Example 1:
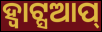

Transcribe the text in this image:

ହ୍ବାଟ୍ସଆପ୍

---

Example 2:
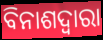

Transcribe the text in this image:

ବିନାଶଦ୍ଵାରା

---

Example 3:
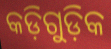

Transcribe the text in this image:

କଡ଼ିଗୁଡ଼ିକ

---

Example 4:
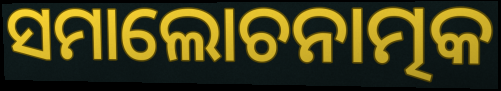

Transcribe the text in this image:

ସମାଲୋଚନାତ୍ମକ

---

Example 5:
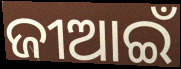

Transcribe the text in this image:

ଜୀଆଇଁ